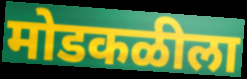
मोडकळीला